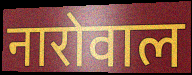
नारोवाल